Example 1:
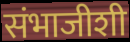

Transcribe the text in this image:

संभाजीशी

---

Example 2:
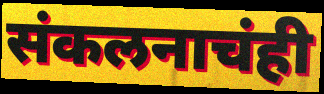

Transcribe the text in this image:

संकलनाचंही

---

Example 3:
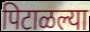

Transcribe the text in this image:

पिटाळल्या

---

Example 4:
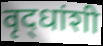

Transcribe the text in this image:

वृद्धांशी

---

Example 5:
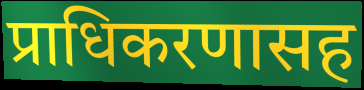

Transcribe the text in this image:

प्राधिकरणासह